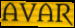
AVAR